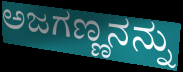
ಅಜಗಣ್ಣನನ್ನು